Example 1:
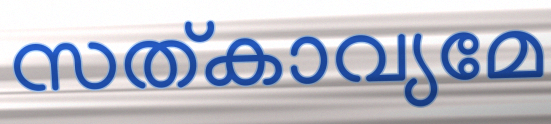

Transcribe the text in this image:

സത്കാവ്യമേ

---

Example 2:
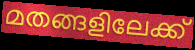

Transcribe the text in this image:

മതങ്ങളിലേക്ക്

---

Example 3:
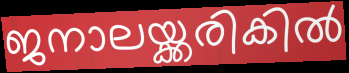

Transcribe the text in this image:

ജനാലയ്ക്കരികിൽ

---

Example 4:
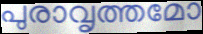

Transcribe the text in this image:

പുരാവൃത്തമോ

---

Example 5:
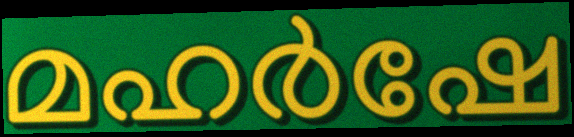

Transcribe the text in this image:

മഹർഷേ